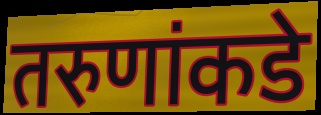
तरुणांकडे